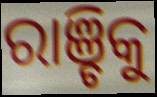
ରାଞ୍ଚିକୁ